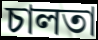
চালতা